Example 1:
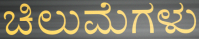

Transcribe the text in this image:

ಚಿಲುಮೆಗಳು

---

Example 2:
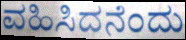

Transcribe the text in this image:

ವಹಿಸಿದನೆಂದು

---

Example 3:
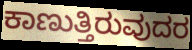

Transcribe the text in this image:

ಕಾಣುತ್ತಿರುವುದರ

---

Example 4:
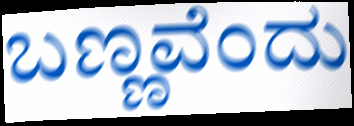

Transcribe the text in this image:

ಬಣ್ಣವೆಂದು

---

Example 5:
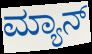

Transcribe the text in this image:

ಮ್ಯಾನ್